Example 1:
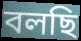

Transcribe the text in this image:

বলছি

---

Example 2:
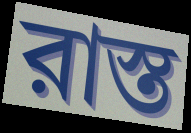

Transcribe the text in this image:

রাস্ত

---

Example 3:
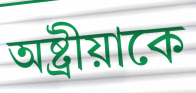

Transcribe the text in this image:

অষ্ট্রীয়াকে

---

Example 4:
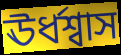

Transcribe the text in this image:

ঊর্ধশ্বাস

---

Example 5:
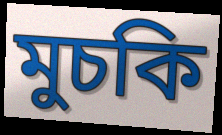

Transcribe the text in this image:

মুচকি